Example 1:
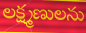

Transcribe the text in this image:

లక్ష్మణులను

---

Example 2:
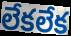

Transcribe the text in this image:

లేకలేక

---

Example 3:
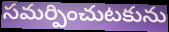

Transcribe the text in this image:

సమర్పించుటకును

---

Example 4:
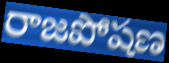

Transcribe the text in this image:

రాజపోషణ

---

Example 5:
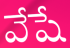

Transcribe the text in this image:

వేషే